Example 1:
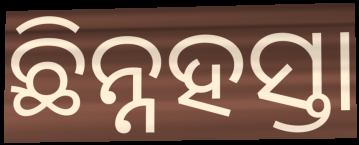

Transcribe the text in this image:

ଛିନ୍ନହସ୍ତା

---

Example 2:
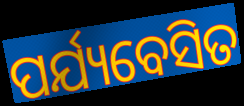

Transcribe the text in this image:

ପର୍ଯ୍ୟବେସିତ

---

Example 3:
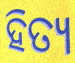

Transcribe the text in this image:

ହିତ୍ୟ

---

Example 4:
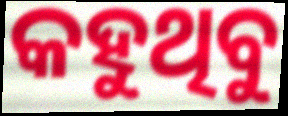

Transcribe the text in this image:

କହୁଥିବୁ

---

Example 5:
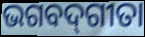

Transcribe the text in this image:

ଭଗବଦ୍‌ଗୀତା